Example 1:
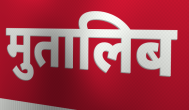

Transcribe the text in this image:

मुतालिब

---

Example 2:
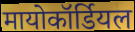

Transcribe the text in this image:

मायोकॉर्डियल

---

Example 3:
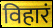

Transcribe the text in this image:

विहारं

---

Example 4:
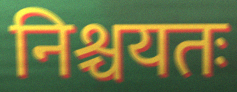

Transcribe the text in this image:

निश्चयतः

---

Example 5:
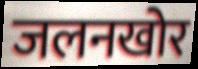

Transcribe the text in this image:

जलनखोर